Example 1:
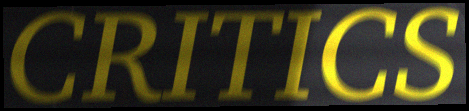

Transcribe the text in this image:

CRITICS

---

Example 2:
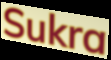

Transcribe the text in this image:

Sukra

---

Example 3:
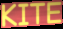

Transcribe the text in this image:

KITE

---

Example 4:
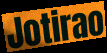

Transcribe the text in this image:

Jotirao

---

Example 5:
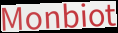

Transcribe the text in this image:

Monbiot